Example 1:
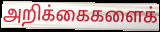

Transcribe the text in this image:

அறிக்கைகளைக்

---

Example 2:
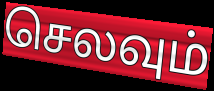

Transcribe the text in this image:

செலவும்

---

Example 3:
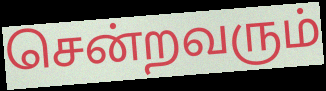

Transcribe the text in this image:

சென்றவரும்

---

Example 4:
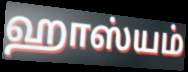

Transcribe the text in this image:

ஹாஸ்யம்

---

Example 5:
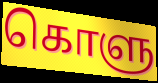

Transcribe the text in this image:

கொளு